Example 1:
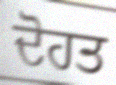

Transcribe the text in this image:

ਦੋਹਤ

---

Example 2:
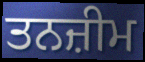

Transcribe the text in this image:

ਤਨਜ਼ੀਮ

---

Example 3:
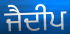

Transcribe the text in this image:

ਜੈਦੀਪ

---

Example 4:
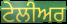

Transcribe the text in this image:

ਟੇਲੀਅਰ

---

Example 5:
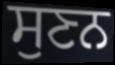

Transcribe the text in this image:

ਸੁਣਨ